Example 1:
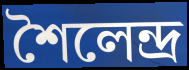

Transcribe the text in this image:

শৈলেন্দ্ৰ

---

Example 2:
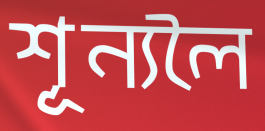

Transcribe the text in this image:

শূন্যলৈ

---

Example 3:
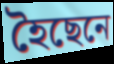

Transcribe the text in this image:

হৈছেনে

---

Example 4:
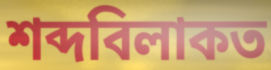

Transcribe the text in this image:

শব্দবিলাকত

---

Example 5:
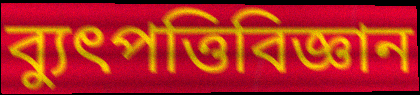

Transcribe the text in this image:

ব্যুৎপত্তিবিজ্ঞান